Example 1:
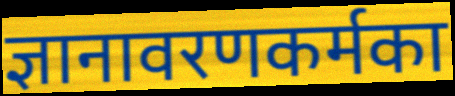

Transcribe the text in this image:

ज्ञानावरणकर्मका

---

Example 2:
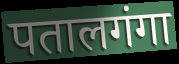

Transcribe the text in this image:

पतालगंगा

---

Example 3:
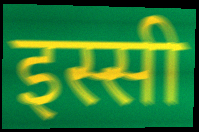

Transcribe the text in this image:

इस्सी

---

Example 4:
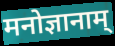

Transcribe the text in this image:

मनोज्ञानाम्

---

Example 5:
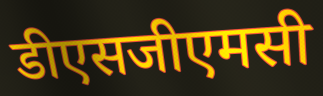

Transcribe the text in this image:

डीएसजीएमसी